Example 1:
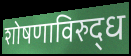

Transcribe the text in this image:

शोषणाविरुद्ध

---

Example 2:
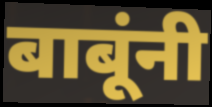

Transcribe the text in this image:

बाबूंनी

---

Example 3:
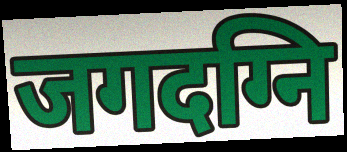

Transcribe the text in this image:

जगदग्नि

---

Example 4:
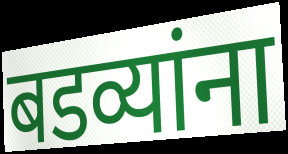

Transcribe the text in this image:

बडव्यांना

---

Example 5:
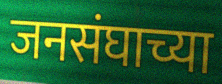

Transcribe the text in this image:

जनसंघाच्या